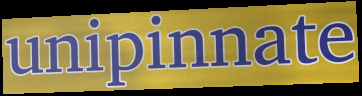
unipinnate